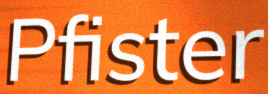
Pfister